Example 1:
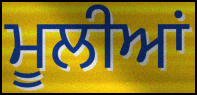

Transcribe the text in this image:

ਮੂਲੀਆਂ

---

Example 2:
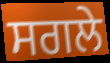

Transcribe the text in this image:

ਸਗਲੇ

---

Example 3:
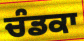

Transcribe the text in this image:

ਚੰਡਕਾ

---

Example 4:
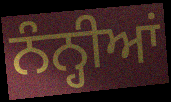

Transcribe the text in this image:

ਨੰਨ੍ਹੀਆਂ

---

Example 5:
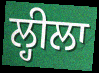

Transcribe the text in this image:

ਲ੍ਹੀਲਾ